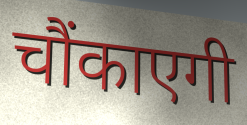
चौंकाएगी